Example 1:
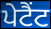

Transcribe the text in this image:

ਪੇਟੈਂਟ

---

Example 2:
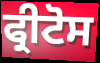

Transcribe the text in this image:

ਫ੍ਰੀਟੋਸ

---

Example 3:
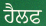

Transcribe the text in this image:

ਹੈਲਫ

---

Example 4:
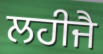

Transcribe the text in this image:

ਲਹੀਜੈ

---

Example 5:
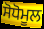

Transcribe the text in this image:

ਸੋਧੋਮੂਲ